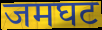
जमघट